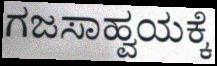
ಗಜಸಾಹ್ವಯಕ್ಕೆ